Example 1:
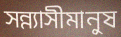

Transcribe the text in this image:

সন্ন্যাসীমানুষ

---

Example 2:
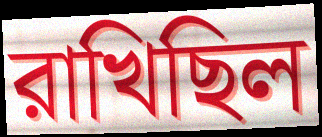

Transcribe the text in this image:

রাখিছিল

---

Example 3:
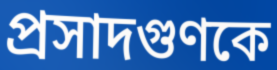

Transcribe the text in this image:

প্রসাদগুণকে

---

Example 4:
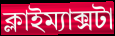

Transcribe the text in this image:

ক্লাইম্যাক্সটা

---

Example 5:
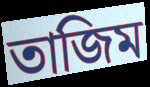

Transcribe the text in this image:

তাজিম